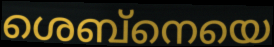
ശെബ്നെയെ